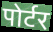
पोर्टर